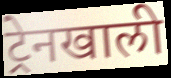
ट्रेनखाली